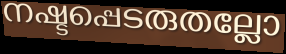
നഷ്ടപ്പെടരുതല്ലോ